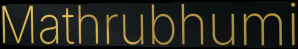
Mathrubhumi